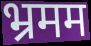
भ्रमम